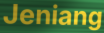
Jeniang